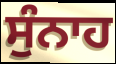
ਸੁੰਨਾਹ